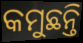
କମୁଛନ୍ତି